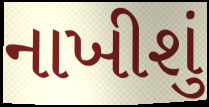
નાખીશું